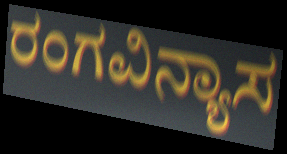
ರಂಗವಿನ್ಯಾಸ